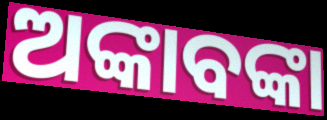
ଅଙ୍କାବଙ୍କା